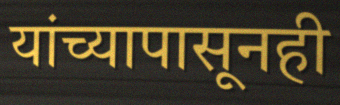
यांच्यापासूनही